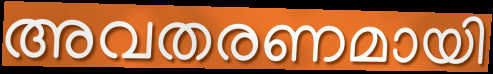
അവതരണമായി